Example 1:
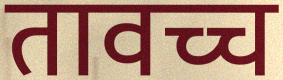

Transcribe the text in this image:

तावच्च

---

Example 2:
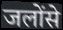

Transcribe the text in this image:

जलोंसे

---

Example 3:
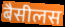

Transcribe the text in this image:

बैसीलस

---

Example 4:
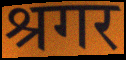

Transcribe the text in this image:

श्रगर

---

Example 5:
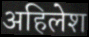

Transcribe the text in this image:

अहिलेश